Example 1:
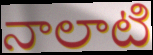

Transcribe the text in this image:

నాలాటి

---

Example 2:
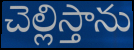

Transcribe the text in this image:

చెల్లిస్తాను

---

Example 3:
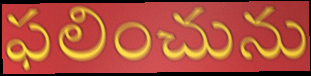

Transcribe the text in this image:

ఫలించును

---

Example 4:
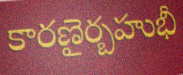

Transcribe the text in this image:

కారణైర్బహుభీ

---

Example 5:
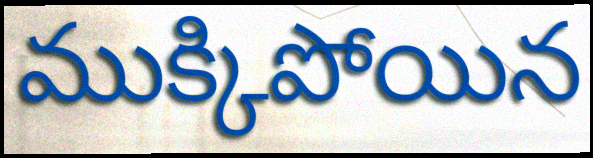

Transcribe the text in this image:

ముక్కిపోయిన